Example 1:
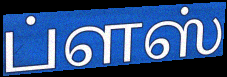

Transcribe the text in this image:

ப்ளஸ்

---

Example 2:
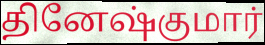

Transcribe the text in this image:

தினேஷ்குமார்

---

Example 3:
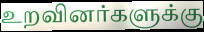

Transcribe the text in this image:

உறவினர்களுக்கு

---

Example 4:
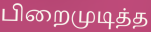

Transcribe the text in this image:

பிறைமுடித்த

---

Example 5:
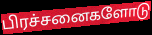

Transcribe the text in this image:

பிரச்சனைகளோடு